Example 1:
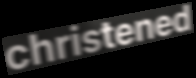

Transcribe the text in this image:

christened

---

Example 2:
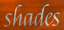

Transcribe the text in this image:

shades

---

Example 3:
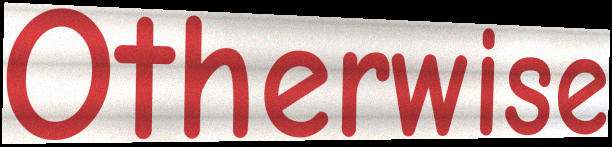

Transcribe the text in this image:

Otherwise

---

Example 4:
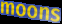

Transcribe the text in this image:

moons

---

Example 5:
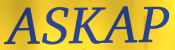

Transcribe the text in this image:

ASKAP